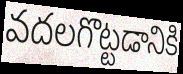
వదలగొట్టడానికి